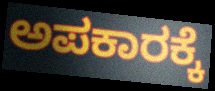
ಅಪಕಾರಕ್ಕೆ